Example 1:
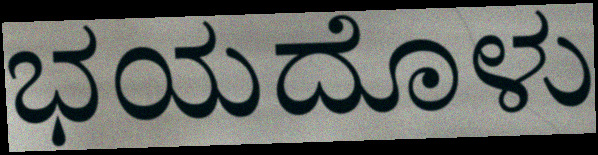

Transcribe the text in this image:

ಭಯದೊಳು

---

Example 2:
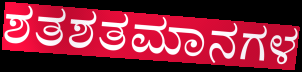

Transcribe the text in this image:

ಶತಶತಮಾನಗಳ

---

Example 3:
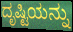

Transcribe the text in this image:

ದೃಷ್ಟಿಯನ್ನು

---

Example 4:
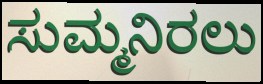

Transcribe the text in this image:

ಸುಮ್ಮನಿರಲು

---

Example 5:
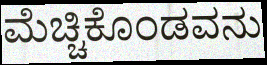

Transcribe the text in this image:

ಮೆಚ್ಚಿಕೊಂಡವನು